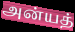
அன்யத்